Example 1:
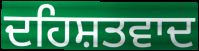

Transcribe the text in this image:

ਦਹਿਸ਼ਤਵਾਦ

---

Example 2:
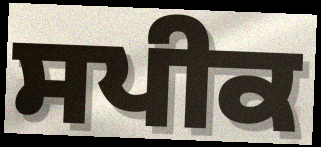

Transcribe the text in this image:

ਸਪੀਕ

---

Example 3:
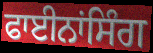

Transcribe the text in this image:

ਫਾਈਨਾਂਸਿੰਗ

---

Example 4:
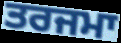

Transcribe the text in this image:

ਤਰਜਮਾ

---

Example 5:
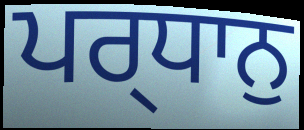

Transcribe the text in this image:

ਪਰ੍ਧਾਨੁ